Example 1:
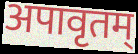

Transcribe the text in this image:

अपावृतम्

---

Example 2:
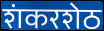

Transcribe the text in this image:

शंकरशेठ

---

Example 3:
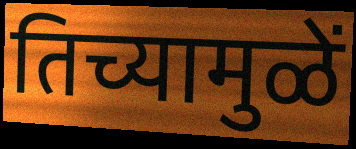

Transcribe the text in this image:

तिच्यामुळें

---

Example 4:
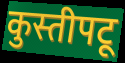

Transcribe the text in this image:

कुस्तीपटू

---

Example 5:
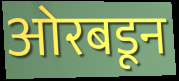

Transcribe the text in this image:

ओरबडून